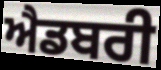
ਐਡਬਰੀ